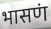
भासणं